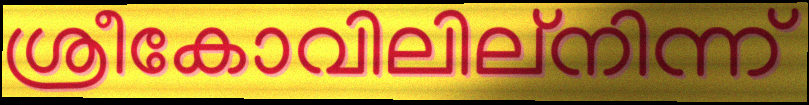
ശ്രീകോവിലില്നിന്ന്